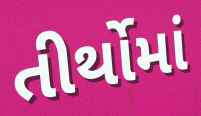
તીર્થોમાં